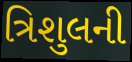
ત્રિશુલની